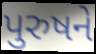
પુરુષને